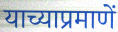
याच्याप्रमाणें